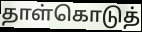
தாள்கொடுத்